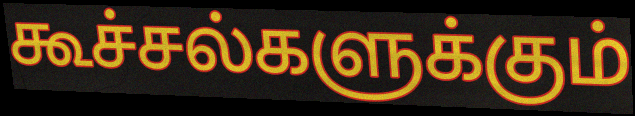
கூச்சல்களுக்கும்